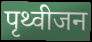
पृथ्वीजन